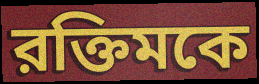
রক্তিমকে